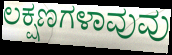
ಲಕ್ಷಣಗಳಾವುವು